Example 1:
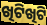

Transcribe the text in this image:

ଖିଟିଖିଟି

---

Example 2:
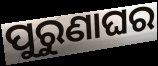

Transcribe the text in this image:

ପୁରୁଣାଘର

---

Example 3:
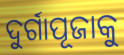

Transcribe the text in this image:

ଦୁର୍ଗାପୂଜାକୁ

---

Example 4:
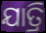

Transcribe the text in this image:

ଯାତ୍ରି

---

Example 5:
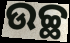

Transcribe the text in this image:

ଉଚ୍ଛ